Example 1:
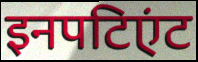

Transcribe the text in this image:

इनपटिएंट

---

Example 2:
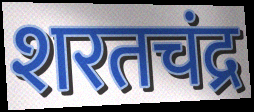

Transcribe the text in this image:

शरतचंद्र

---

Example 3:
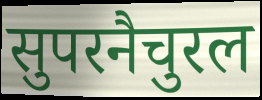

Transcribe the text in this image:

सुपरनैचुरल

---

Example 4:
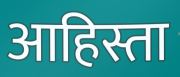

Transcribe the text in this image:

आहिस्ता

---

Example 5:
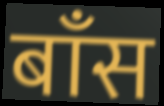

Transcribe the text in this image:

बॉंस